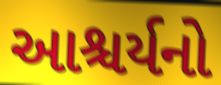
આશ્ચર્યનો